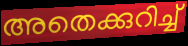
അതെക്കുറിച്ച്